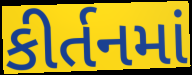
કીર્તનમાં